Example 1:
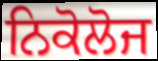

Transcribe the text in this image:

ਨਿਕੋਲੋਜ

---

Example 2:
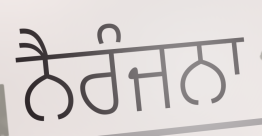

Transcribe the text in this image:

ਨੈਰੰਜਨਾ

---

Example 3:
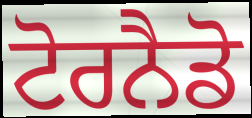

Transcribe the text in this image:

ਟੋਰਨੈਡੋ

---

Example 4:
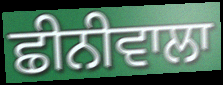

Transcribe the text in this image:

ਛੀਨੀਵਾਲਾ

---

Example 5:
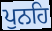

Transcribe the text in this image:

ਪੁਨਹਿ